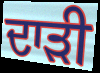
ਦਾੜੀ